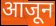
आजून